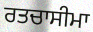
ਰਤਚਾਸੀਮਾ